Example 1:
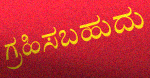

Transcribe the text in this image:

ಗ್ರಹಿಸಬಹುದು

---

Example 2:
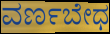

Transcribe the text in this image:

ವರ್ಣಬೇಧ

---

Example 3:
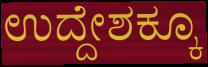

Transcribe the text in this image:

ಉದ್ದೇಶಕ್ಕೂ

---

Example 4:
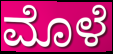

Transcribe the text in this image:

ಮೊಳೆ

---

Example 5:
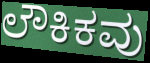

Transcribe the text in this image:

ಲೌಕಿಕವು